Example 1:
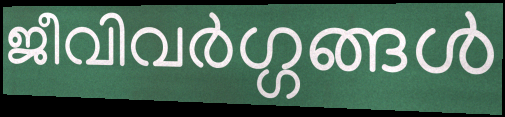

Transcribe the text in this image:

ജീവിവർഗ്ഗങ്ങൾ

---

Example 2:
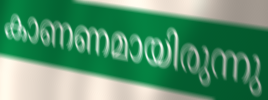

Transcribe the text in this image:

കാണണമായിരുന്നു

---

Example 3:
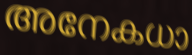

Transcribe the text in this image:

അനേകധാ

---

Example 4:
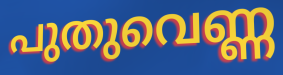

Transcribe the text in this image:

പുതുവെണ്ണ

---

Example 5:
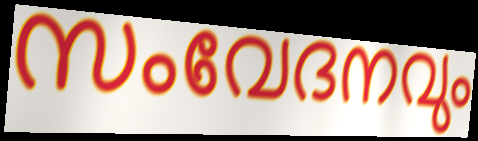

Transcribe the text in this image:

സംവേദനവും